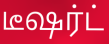
டீஷர்ட்